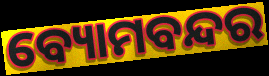
ବ୍ୟୋମବନ୍ଦର